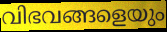
വിഭവങ്ങളെയും